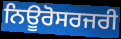
ਨਿਊਰੋਸਰਜਰੀ